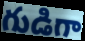
గుడిగా